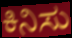
ಕಿನಿಸು